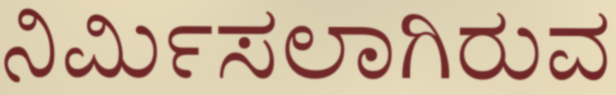
ನಿರ್ಮಿಸಲಾಗಿರುವ